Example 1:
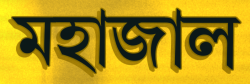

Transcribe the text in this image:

মহাজাল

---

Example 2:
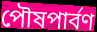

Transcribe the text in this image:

পৌষপার্বণ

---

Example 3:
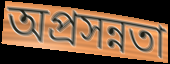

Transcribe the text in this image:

অপ্রসন্নতা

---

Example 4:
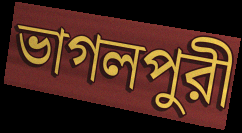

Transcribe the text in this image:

ভাগলপুরী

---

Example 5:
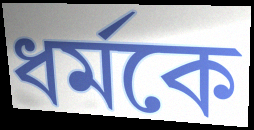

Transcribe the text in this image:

ধর্মকে